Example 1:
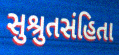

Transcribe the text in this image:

સુશ્રુતસંહિતા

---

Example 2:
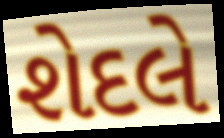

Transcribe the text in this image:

શેદલે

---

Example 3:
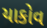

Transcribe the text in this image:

યાકોવ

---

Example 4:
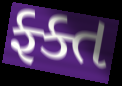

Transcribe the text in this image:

ફ્ક્ત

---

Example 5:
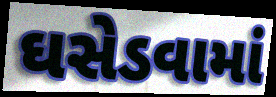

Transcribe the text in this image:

ઘસેડવામાં